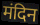
मंदिन